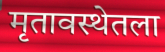
मृतावस्थेतला